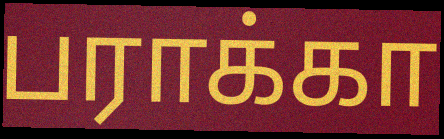
பராக்கா